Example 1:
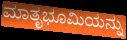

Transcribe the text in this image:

ಮಾತೃಭೂಮಿಯನ್ನು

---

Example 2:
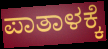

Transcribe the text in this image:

ಪಾತಾಳಕ್ಕೆ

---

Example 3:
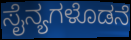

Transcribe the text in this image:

ಸೈನ್ಯಗಳೊಡನೆ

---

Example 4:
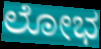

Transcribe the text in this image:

ಲೋಭ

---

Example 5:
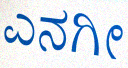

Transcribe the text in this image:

ಎನಗೀ